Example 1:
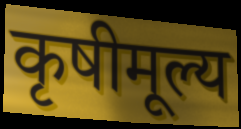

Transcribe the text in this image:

कृषीमूल्य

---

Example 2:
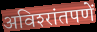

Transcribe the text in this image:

अविश्रांतपणें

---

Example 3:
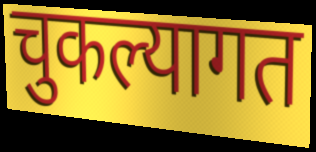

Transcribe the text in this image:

चुकल्यागत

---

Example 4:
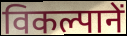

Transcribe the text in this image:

विकल्पानें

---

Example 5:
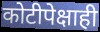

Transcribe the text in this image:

कोटीपेक्षाही